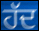
ਹੱਦ